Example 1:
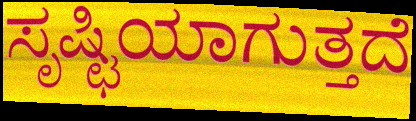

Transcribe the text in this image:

ಸೃಷ್ಟಿಯಾಗುತ್ತದೆ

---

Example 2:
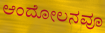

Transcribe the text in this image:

ಆಂದೋಲನವೂ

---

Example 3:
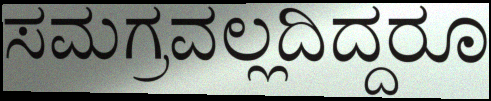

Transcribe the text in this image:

ಸಮಗ್ರವಲ್ಲದಿದ್ದರೂ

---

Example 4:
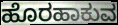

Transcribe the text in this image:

ಹೊರಹಾಕುವ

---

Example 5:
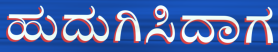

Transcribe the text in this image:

ಹುದುಗಿಸಿದಾಗ